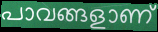
പാവങ്ങളാണ്